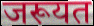
जरूयत